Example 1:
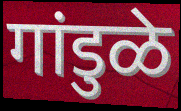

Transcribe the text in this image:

गांडुळे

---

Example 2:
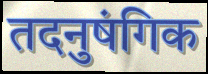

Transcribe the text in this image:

तदनुषंगिक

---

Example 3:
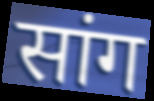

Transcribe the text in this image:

सांग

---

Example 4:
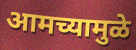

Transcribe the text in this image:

आमच्यामुळे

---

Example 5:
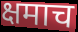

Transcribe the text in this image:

क्षमाच